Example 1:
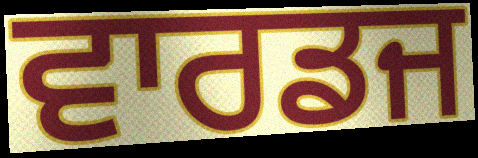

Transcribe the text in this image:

ਵਾਰਡਜ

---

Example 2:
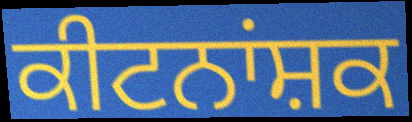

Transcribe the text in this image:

ਕੀਟਨਾਂਸ਼ਕ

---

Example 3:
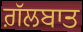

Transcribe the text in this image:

ਗ਼ੱਲਬਾਤ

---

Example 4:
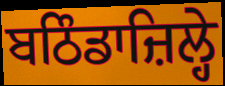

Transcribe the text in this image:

ਬਠਿੰਡਾਜ਼ਿਲ੍ਹੇ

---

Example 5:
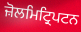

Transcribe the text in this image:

ਜ਼ੋਲਮਿਟ੍ਰਿਪਟਨ